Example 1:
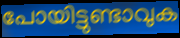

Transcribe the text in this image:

പോയിട്ടുണ്ടാവുക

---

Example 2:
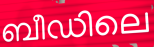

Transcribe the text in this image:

ബീഡിലെ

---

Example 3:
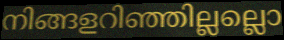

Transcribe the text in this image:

നിങ്ങളറിഞ്ഞില്ലല്ലൊ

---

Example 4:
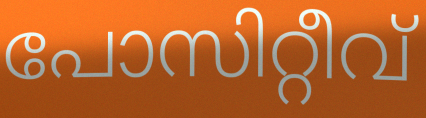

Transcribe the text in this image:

പോസിറ്റീവ്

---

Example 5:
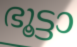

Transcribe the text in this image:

ഭൂട്ടാ